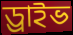
ড্রাইভ